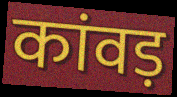
कांवड़